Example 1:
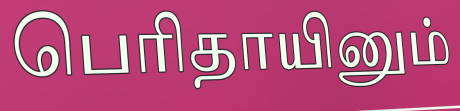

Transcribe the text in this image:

பெரிதாயினும்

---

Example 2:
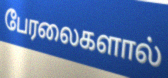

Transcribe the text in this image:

பேரலைகளால்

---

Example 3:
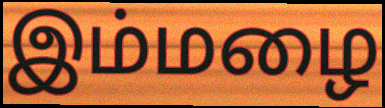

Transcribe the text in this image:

இம்மழை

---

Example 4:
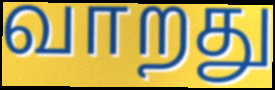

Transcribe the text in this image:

வாறது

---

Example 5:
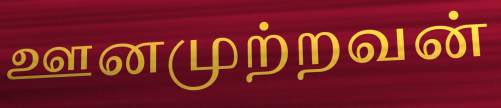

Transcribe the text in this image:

ஊனமுற்றவன்